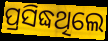
ପ୍ରସିଦ୍ଧଥିଲେ